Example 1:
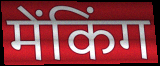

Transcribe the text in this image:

मेंकिंग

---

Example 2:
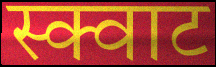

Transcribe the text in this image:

स्क्वाट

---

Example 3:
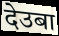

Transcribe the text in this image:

देउबा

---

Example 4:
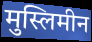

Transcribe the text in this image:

मुस्लिमीन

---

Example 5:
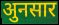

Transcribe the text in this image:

अुनसार